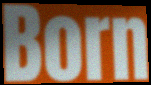
Born